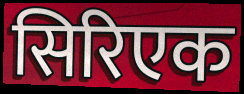
सिरिएक